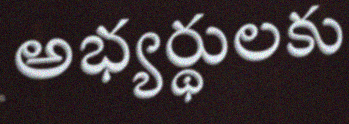
అభ్యర్థులకు